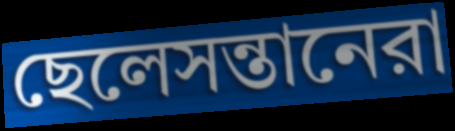
ছেলেসন্তানেরা